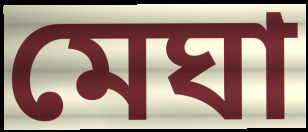
মেঘা